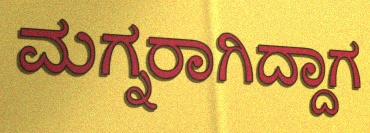
ಮಗ್ನರಾಗಿದ್ದಾಗ